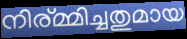
നിര്മ്മിച്ചതുമായ